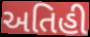
અતિહી